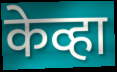
केव्हा